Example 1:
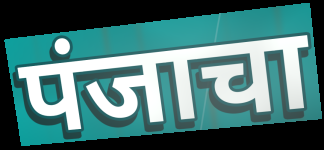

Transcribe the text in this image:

पंजाचा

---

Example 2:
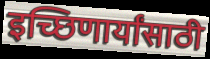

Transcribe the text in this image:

इच्छिणार्यांसाठी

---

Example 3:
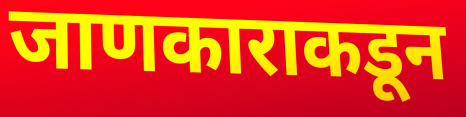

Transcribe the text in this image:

जाणकाराकडून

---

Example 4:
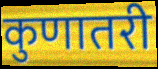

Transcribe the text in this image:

कुणातरी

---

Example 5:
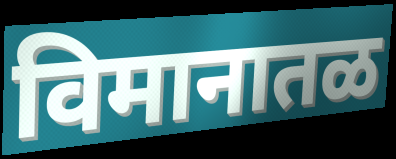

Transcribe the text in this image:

विमानातळ